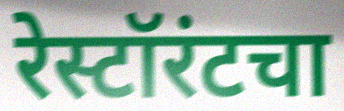
रेस्टॉरंटचा